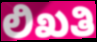
ಲಿಖತಿ